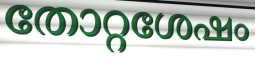
തോറ്റശേഷം